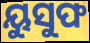
ୟୁସୁଫ